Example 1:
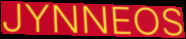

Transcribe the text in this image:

JYNNEOS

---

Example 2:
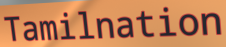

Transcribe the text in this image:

Tamilnation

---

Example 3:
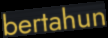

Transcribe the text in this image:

bertahun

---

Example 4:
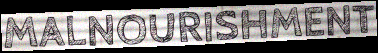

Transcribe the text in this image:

MALNOURISHMENT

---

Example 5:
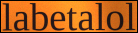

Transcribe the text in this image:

labetalol